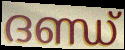
ദണ്ഡ്